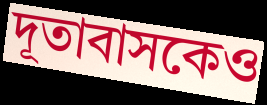
দূতাবাসকেও